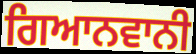
ਗਿਆਨਵਾਨੀ